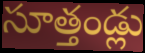
సూత్తండ్లు